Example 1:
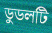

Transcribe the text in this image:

ডুডলটি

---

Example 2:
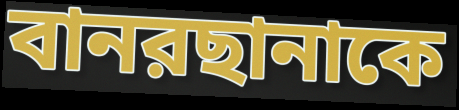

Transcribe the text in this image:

বানরছানাকে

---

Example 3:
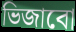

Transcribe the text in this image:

ভিজাবো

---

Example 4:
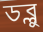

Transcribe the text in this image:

ডব্লু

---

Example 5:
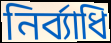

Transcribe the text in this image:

নির্ব্যাধি